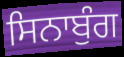
ਸਿਨਾਬੁੰਗ